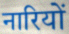
नारियों